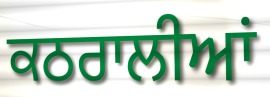
ਕਠਰਾਲੀਆਂ